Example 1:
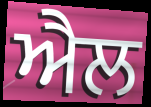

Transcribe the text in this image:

ਐਲ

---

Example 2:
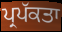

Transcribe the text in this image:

ਪ੍ਰਪੱਕਤਾ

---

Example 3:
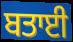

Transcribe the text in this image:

ਬਤਾਈ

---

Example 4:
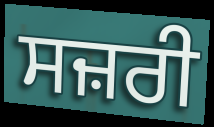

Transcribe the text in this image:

ਸਜ਼ਰੀ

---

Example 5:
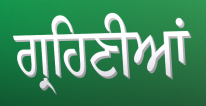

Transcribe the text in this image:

ਗ੍ਰਹਿਣੀਆਂ